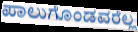
ಪಾಲುಗೊಂಡವರೆಲ್ಲ